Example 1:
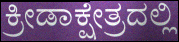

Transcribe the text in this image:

ಕ್ರೀಡಾಕ್ಷೇತ್ರದಲ್ಲಿ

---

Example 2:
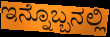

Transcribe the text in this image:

ಇನ್ನೊಬ್ಬನಲ್ಲಿ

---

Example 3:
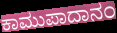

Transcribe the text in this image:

ಕಾಮುಪಾದಾನಂ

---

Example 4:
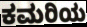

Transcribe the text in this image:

ಕಮರಿಯ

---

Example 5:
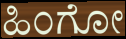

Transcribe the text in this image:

ಹಿಂಗೋ